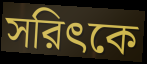
সরিৎকে